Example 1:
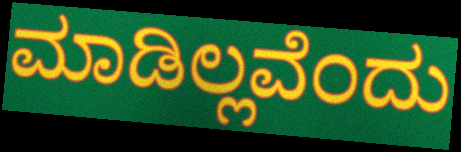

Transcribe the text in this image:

ಮಾಡಿಲ್ಲವೆಂದು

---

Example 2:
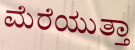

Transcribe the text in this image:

ಮೆರೆಯುತ್ತಾ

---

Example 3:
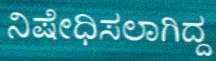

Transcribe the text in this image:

ನಿಷೇಧಿಸಲಾಗಿದ್ದ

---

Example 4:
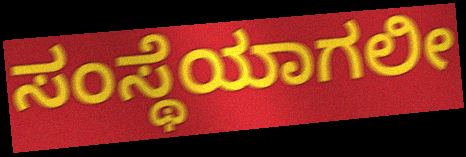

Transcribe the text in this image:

ಸಂಸ್ಥೆಯಾಗಲೀ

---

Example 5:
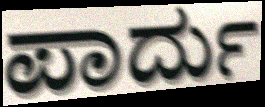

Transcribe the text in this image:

ಪಾರ್ದು